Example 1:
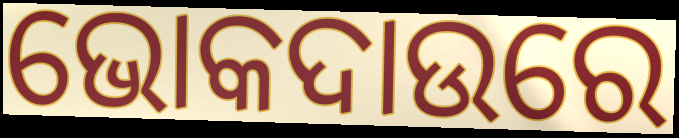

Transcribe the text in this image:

ଭୋକଦାଉରେ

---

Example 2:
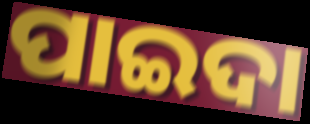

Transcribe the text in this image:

ପାଇଦା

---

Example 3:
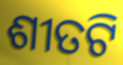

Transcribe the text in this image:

ଶୀତଟି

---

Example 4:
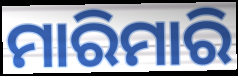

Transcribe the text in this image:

ମାରିମାରି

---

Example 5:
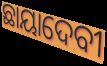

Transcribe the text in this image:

ଛାୟାଦେବୀ